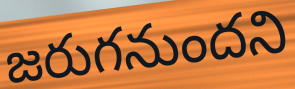
జరుగనుందని